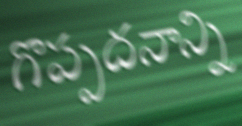
గొప్పదనాన్ని